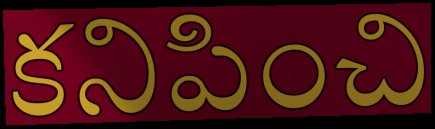
కనిపించి